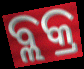
ବ୍ଲକ୍ର